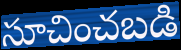
సూచించబడి